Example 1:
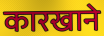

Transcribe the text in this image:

कारखाने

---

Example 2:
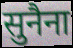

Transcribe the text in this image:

सुनैना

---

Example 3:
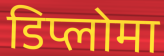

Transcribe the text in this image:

डिप्‍लोमा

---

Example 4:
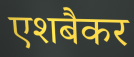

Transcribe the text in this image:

एशबैकर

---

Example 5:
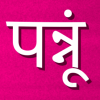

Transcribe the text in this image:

पन्नूं